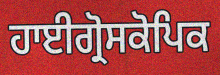
ਹਾਈਗ੍ਰੋਸਕੋਪਿਕ